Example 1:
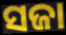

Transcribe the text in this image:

ସଜା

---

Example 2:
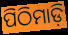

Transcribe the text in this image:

ପିଠିମାଡ଼ି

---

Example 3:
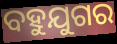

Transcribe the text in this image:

ବହୁଯୁଗର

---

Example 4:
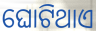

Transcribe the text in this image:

ଘୋଟିଥାଏ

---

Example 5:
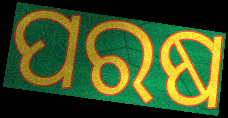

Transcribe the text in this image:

ପରଷ